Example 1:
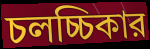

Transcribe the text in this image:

চলচ্চিকার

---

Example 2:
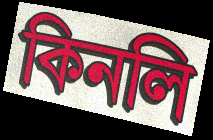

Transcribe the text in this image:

কিনলি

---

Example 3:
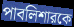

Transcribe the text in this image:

পাবলিশারকে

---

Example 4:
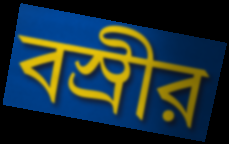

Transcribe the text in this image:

বস্রীর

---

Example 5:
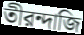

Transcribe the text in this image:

তীরন্দাজি